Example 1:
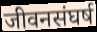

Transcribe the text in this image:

जीवनसंघर्ष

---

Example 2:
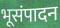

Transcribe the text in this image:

भूसंपादन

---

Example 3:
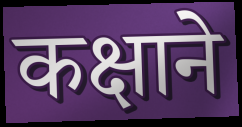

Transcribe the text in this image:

कक्षाने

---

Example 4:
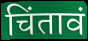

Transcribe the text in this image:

चिंतावं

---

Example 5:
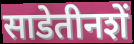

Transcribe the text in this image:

साडेतीनशें